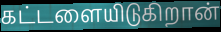
கட்டளையிடுகிறான்